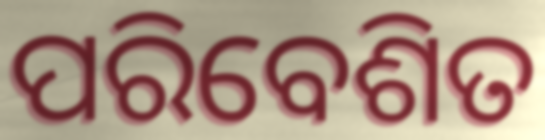
ପରିବେଶିତ